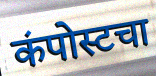
कंपोस्टचा